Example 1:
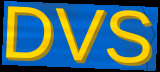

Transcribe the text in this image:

DVS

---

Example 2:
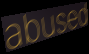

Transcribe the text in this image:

abused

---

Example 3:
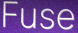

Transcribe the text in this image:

Fuse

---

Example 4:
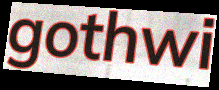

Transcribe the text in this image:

gothwi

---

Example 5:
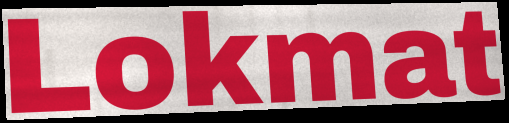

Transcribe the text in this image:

Lokmat